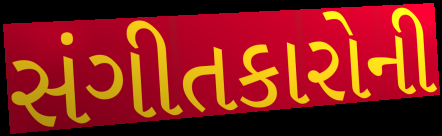
સંગીતકારોની